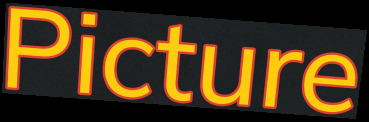
Picture